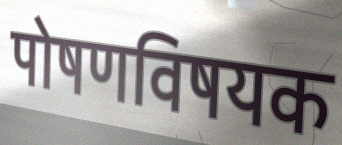
पोषणविषयक